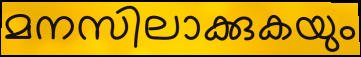
മനസിലാക്കുകയും